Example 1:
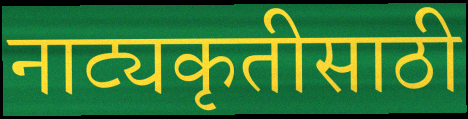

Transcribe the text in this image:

नाट्यकृतीसाठी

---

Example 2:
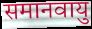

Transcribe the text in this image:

समानवायु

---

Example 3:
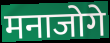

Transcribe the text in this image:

मनाजोगे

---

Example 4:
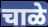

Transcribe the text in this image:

चाळे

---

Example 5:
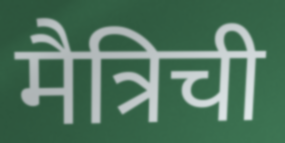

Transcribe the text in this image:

मैत्रिची